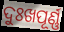
ଦୁଃଖପୂର୍ଣ୍ଣ